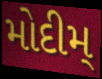
મોદીમ્